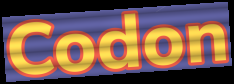
Codon